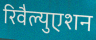
रिवैल्युएशन